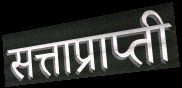
सत्ताप्राप्ती